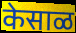
केसाळ